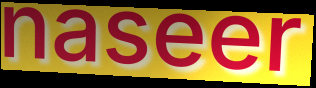
naseer